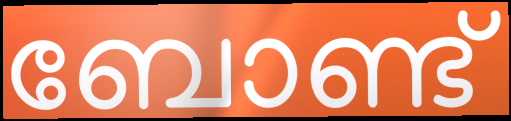
ബോണ്ട്